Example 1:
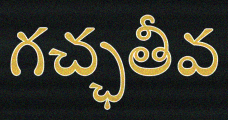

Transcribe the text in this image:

గచ్ఛతీవ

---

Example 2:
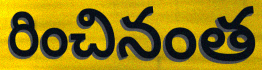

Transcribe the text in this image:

రించినంత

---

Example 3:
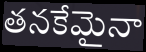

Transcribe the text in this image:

తనకేమైనా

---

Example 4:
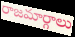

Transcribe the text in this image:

రాజమార్గాలు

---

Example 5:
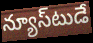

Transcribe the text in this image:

న్యూస్‌టుడే